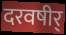
दरवषीर्